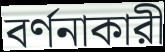
বর্ণনাকারী